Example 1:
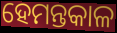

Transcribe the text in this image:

ହେମନ୍ତକାଳ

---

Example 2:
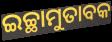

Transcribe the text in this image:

ଇଚ୍ଛାମୁତାବକ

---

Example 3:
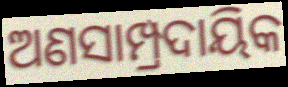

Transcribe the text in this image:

ଅଣସାମ୍ପ୍ରଦାୟିକ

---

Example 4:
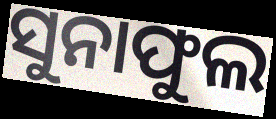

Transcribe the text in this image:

ସୁନାଫୁଲ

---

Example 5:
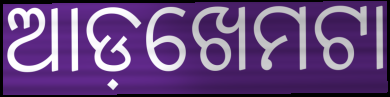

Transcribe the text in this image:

ଆଡ଼ଖେମଟା